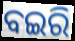
ବଇରି